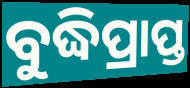
ବୁଦ୍ଧିପ୍ରାପ୍ତ